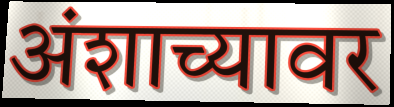
अंशाच्यावर